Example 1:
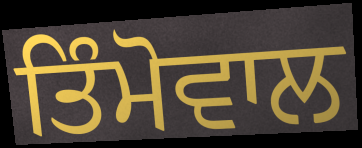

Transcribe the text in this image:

ਤਿੰਮੋਵਾਲ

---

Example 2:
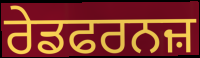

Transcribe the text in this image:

ਰੇਡਫਰਨਜ਼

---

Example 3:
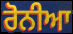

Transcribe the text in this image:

ਰੋਨੀਆ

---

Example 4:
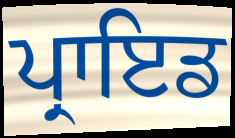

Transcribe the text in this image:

ਪ੍ਰਾਇਡ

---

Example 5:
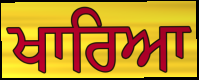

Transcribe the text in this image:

ਖਾਰਿਆ